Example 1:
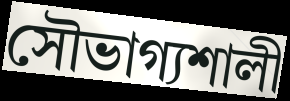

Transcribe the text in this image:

সৌভাগ্যশালী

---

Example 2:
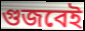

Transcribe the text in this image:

গুজবেই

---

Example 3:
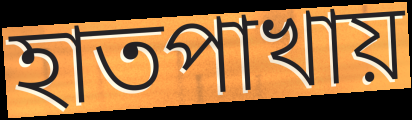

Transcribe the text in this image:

হাতপাখায়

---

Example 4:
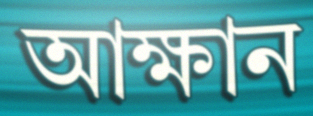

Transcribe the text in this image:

আক্ষান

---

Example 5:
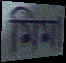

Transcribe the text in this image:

মিমা